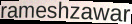
rameshzawar